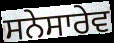
ਸਨੇਸਾਰੇਵ